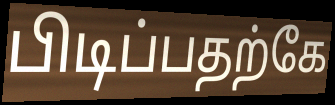
பிடிப்பதற்கே